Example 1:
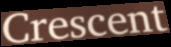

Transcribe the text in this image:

Crescent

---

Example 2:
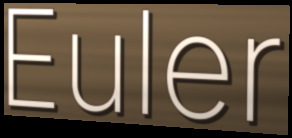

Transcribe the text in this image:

Euler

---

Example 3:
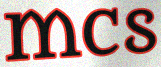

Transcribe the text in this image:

mcs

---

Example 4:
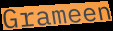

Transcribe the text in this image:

Grameen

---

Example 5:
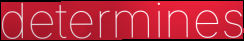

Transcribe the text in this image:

determines